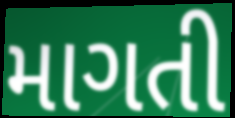
માગતી